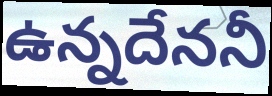
ఉన్నదేననీ